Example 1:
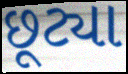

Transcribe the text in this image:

છૂટ્યા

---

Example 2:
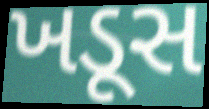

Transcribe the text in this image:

ખડૂસ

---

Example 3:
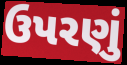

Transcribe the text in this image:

ઉપરણું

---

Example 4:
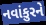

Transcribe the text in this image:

નવાંકુરને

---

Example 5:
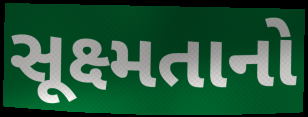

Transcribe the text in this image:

સૂક્ષ્મતાનો